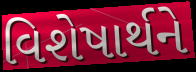
વિશેષાર્થને